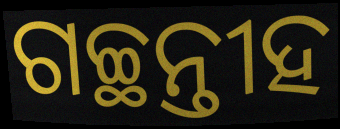
ଗଚ୍ଛନ୍ତୀହ